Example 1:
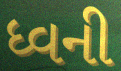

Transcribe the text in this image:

ધ્વની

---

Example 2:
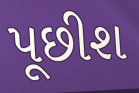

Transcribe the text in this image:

પૂછીશ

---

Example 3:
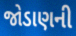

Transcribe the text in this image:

જોડાણની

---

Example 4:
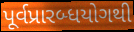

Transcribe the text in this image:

પૂર્વપ્રારબ્ધયોગથી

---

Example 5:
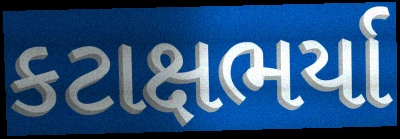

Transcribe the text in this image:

કટાક્ષભર્યા